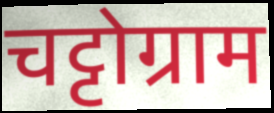
चट्टोग्राम